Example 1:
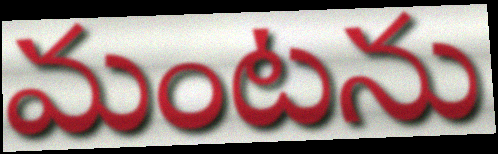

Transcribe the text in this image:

మంటను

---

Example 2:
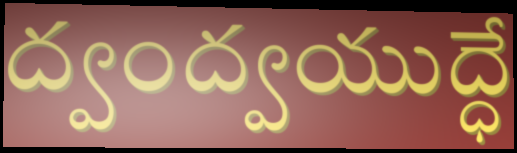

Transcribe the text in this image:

ద్వంద్వయుద్ధే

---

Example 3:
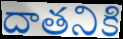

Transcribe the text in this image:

దాతనికి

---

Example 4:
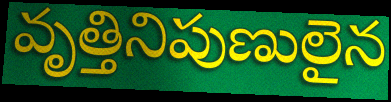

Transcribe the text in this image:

వృత్తినిపుణులైన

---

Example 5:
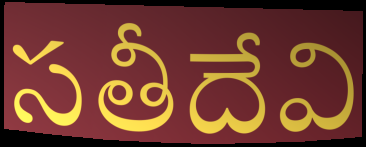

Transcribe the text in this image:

సతీదేవి